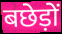
बछेड़ों